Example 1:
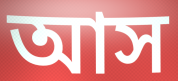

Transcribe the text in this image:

আস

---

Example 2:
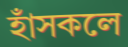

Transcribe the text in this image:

হাঁসকলে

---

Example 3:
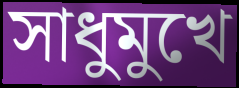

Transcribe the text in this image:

সাধুমুখে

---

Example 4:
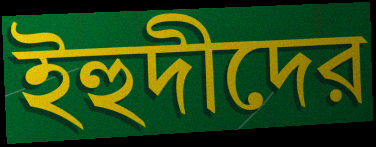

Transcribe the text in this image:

ইহুদীদের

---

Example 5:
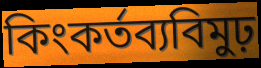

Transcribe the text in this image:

কিংকর্তব্যবিমুঢ়